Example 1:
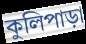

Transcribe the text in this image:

কুলিপাড়া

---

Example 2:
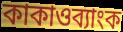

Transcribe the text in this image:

কাকাওব্যাংক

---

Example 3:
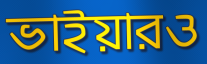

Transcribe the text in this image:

ভাইয়ারও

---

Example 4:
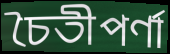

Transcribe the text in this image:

চৈতীপর্ণা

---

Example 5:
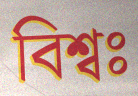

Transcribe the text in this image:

বিশ্বঃ